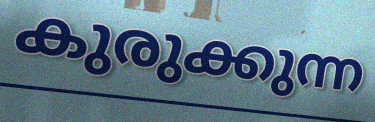
കുരുക്കുന്ന